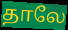
தாலே